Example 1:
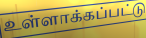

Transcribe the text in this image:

உள்ளாக்கப்பட்டு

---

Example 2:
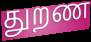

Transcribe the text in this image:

துறண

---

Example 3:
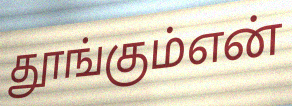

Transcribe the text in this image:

தூங்கும்என்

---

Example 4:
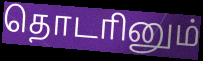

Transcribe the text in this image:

தொடரினும்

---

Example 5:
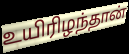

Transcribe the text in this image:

உயிரிழந்தான்